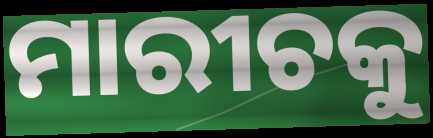
ମାରୀଚକୁ